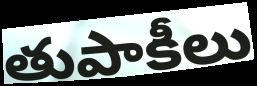
తుపాకీలు